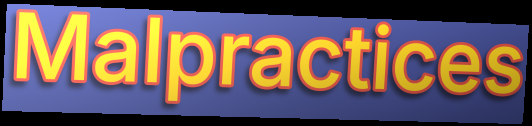
Malpractices